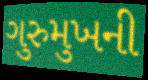
ગુરુમુખની